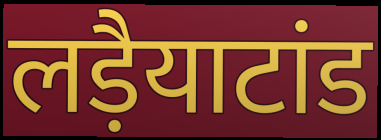
लड़ैयाटांड